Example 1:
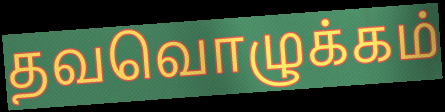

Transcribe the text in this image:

தவவொழுக்கம்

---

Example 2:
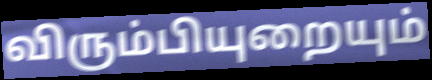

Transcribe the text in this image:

விரும்பியுறையும்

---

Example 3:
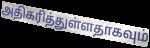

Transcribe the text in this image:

அதிகரித்துள்ளதாகவும்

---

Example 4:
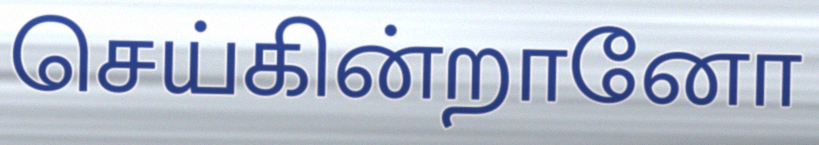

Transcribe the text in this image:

செய்கின்றானோ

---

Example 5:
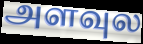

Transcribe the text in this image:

அளவுல